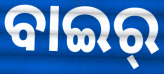
ବାଇର୍